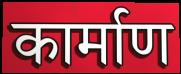
कार्माण